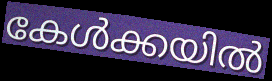
കേൾക്കയിൽ